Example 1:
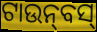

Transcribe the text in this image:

ଟାଉନ୍‍ବସ୍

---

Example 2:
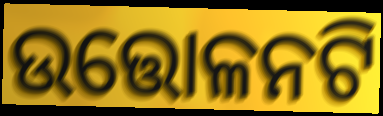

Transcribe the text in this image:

ଉତ୍ତୋଳନଟି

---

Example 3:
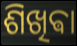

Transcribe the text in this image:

ଶିଖିଵା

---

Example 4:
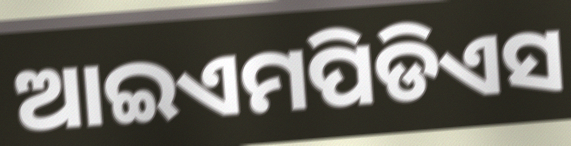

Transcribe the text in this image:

ଆଇଏମପିଡିଏସ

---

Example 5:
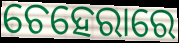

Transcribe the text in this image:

ଚେହେରାରେ